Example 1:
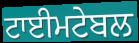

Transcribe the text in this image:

ਟਾਈਮਟੇਬਲ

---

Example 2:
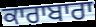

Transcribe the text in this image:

ਕਾਰਾਬਾਰਾ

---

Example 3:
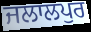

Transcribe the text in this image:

ਜਲਾਲਪੁਰ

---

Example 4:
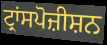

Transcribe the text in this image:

ਟ੍ਰਾਂਸਪੋਜ਼ੀਸ਼ਨ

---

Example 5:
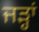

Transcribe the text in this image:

ਜੜ੍ਹਾਂ